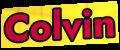
Colvin